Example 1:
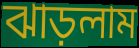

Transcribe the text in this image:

ঝাড়লাম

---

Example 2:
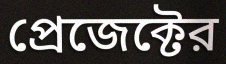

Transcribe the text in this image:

প্রেজেক্টের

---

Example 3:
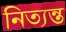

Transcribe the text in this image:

নিত্যন্ত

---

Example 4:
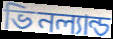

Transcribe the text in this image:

ভিনল্যান্ড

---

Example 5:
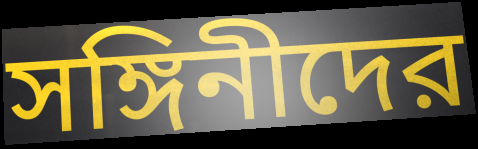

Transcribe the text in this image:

সঙ্গিনীদের